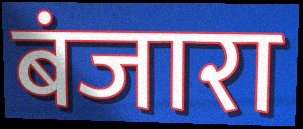
बंजारा